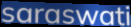
saraswati